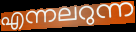
എന്നലറുന്ന